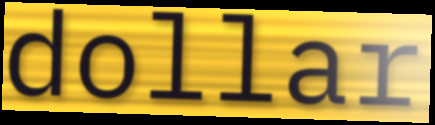
dollar